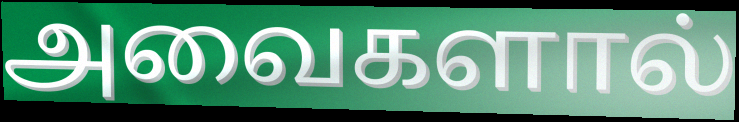
அவைகளால்